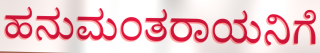
ಹನುಮಂತರಾಯನಿಗೆ